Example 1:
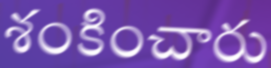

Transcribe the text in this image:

శంకించారు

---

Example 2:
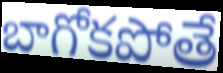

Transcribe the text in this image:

బాగోకపోతే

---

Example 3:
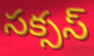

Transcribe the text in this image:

సక్సస్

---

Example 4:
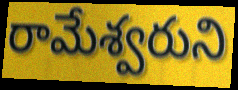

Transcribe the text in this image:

రామేశ్వరుని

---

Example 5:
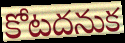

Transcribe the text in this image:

కోటదనుక